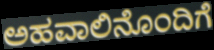
ಅಹವಾಲಿನೊಂದಿಗೆ